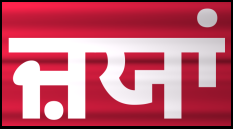
ਜ਼ਯਾਂ